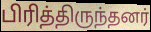
பிரித்திருந்தனர்